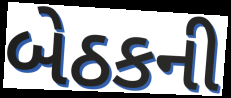
બેઠકની